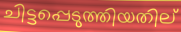
ചിട്ടപ്പെടുത്തിയതില്